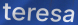
teresa